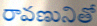
రావణునితో